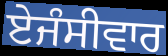
ਏਜੰਸੀਵਾਰ